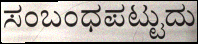
ಸಂಬಂಧಪಟ್ಟುದು